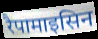
रैपामाइसिन